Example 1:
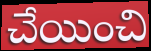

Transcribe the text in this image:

చేయించి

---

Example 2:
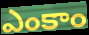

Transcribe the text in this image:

ఎంకాం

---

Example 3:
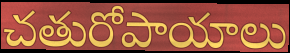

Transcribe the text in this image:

చతురోపాయాలు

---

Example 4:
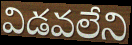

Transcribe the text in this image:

విడవలేని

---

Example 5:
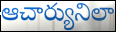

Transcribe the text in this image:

ఆచార్యునిలా